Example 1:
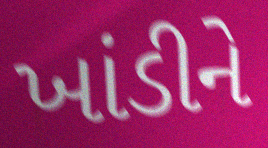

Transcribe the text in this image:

ખાંડીને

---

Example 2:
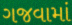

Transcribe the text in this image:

ગજવામાં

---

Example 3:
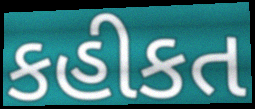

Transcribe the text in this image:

કહીકત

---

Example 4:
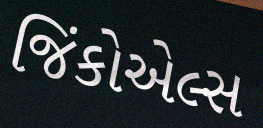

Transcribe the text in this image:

જિંકોએલ્સ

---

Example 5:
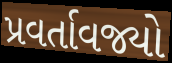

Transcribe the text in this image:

પ્રવર્તાવજ્યો